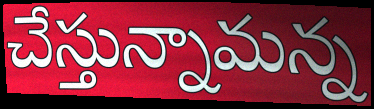
చేస్తున్నామన్న